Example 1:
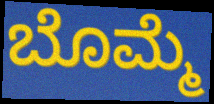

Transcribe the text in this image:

ಬೊಮ್ಮೆ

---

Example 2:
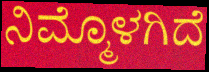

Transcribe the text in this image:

ನಿಮ್ಮೊಳಗಿದೆ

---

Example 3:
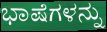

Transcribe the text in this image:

ಭಾಷೆಗಳನ್ನು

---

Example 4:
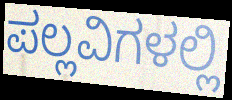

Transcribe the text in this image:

ಪಲ್ಲವಿಗಳಲ್ಲಿ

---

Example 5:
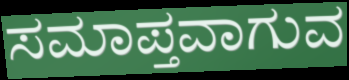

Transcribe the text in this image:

ಸಮಾಪ್ತವಾಗುವ